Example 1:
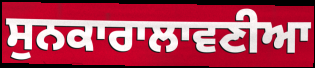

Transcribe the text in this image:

ਸੁਨਕਾਰਾਲਾਵਣੀਆ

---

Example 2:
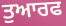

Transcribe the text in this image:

ਤੁਆਰਫ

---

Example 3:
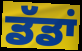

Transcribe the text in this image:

ਡੱਡਾਂ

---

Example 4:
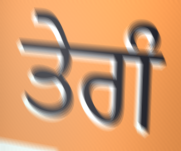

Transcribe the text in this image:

ਤੇਗੰ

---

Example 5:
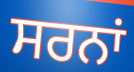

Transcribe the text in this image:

ਸਰਨਾਂ